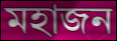
মহাজন